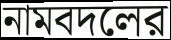
নামবদলের